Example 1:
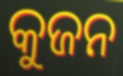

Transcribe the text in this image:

କୁଜନ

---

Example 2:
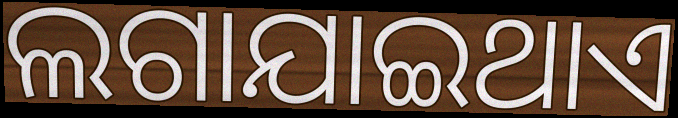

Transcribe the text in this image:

ଲଗାଯାଇଥାଏ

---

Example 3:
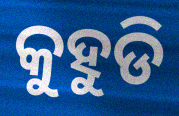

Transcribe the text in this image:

କୁହୁଡି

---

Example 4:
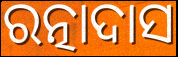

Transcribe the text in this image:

ରତ୍ନାଦାସ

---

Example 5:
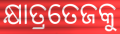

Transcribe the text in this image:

କ୍ଷାତ୍ରତେଜକୁ